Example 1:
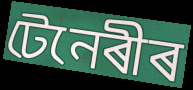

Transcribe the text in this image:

টেনেৰীৰ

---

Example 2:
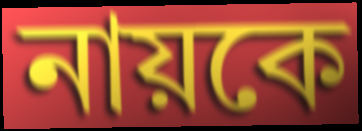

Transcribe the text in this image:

নায়কে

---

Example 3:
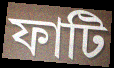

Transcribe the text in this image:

ফাটি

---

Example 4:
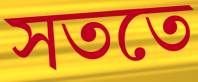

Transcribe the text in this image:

সততে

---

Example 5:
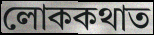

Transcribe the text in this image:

লোককথাত